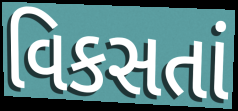
વિકસતાં